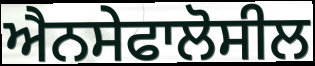
ਐਨਸੇਫਾਲੋਸੀਲ